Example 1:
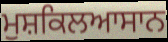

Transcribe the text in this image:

ਮੁਸ਼ਕਿਲਆਸਾਨ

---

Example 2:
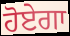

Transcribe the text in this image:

ਹੋਏਗਾ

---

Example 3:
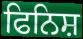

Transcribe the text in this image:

ਫਿਨਿਸ਼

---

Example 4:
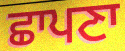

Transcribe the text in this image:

ਛਾਪਣਾ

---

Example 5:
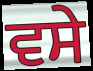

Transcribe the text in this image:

ਵਸੇ